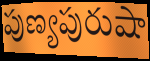
పుణ్యపురుషా